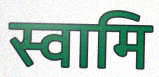
स्वामि